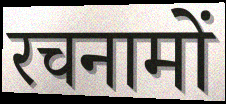
रचनामों